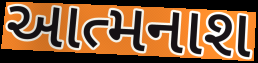
આત્મનાશ